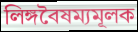
লিঙ্গবৈষম্যমূলক